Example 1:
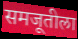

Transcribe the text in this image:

समजूतीला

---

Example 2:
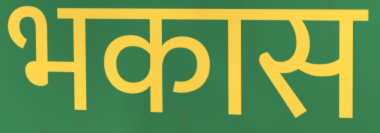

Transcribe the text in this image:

भकास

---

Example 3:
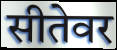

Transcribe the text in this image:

सीतेवर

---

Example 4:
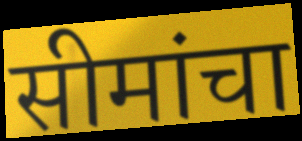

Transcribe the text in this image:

सीमांचा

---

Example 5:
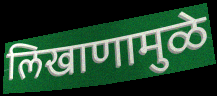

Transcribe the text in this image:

लिखाणामुळे